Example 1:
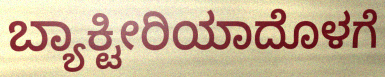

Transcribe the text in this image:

ಬ್ಯಾಕ್ಟೀರಿಯಾದೊಳಗೆ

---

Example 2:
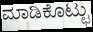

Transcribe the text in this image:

ಮಾಡಿಕೊಟ್ಟು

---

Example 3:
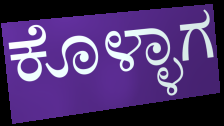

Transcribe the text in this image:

ಕೊಳ್ಳಾಗ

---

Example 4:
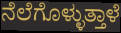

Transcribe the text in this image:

ನೆಲೆಗೊಳ್ಳುತ್ತಾಳೆ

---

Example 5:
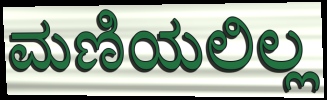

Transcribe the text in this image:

ಮಣಿಯಲಿಲ್ಲ